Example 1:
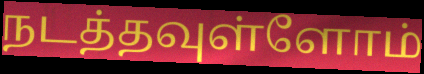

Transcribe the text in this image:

நடத்தவுள்ளோம்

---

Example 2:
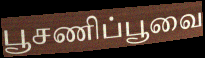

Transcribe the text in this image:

பூசணிப்பூவை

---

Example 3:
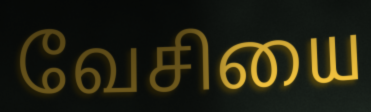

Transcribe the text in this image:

வேசியை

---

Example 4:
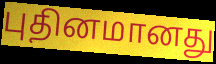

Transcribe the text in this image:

புதினமானது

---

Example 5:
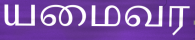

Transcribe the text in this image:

யமைவர